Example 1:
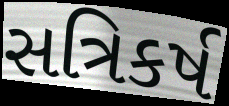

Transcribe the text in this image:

સત્રિકર્ષ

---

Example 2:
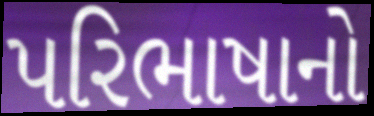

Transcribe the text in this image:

પરિભાષાનો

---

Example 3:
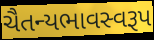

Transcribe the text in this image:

ચૈતન્યભાવસ્વરૂપ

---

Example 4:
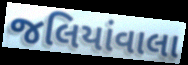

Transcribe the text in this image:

જલિયાંવાલા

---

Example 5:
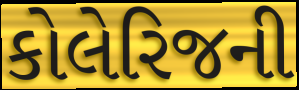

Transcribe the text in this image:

કોલેરિજની